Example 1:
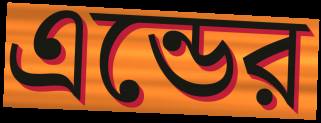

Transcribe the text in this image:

এন্ডের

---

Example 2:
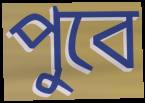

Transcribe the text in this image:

পুবে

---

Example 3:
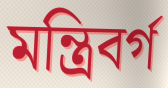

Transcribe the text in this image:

মন্ত্রিবর্গ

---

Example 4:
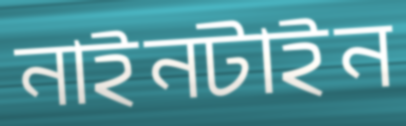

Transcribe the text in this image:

নাইনটাইন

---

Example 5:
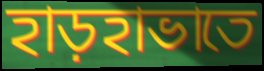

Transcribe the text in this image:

হাড়হাভাতে